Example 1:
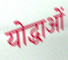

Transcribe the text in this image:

योद्धाओं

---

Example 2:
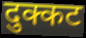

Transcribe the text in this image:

दुक्कट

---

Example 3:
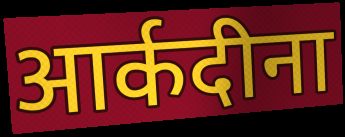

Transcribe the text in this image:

आर्कदीना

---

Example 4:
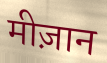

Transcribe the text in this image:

मीज़ान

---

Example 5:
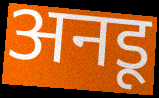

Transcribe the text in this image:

अनडू